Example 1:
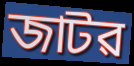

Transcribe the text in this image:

জাটৱ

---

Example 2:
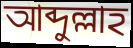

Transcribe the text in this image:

আব্দুল্লাহ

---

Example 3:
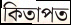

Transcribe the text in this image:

কিতাপত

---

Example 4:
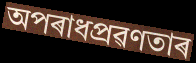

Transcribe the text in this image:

অপৰাধপ্ৰৱণতাৰ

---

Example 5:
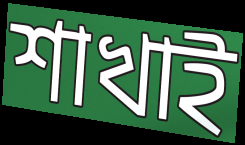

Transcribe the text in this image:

শাখাই